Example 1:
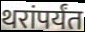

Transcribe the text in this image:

थरांपर्यंत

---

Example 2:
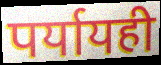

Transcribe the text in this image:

पर्यायही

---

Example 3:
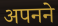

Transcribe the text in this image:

अपनने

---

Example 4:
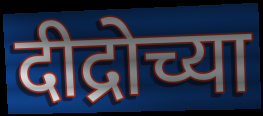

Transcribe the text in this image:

दीद्रोच्या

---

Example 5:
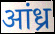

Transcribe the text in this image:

आंध्र